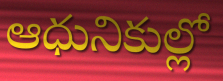
ఆధునికుల్లో